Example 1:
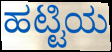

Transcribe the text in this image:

ಹಟ್ಟಿಯ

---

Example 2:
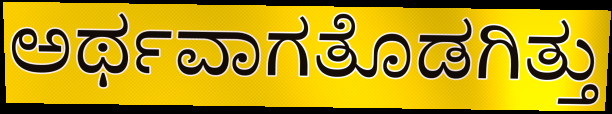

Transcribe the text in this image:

ಅರ್ಥವಾಗತೊಡಗಿತ್ತು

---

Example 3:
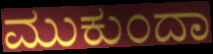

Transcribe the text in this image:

ಮುಕುಂದಾ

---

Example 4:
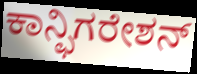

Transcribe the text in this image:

ಕಾನ್ಫಿಗರೇಶನ್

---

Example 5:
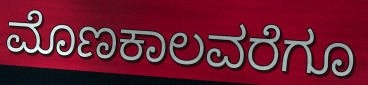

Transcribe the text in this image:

ಮೊಣಕಾಲವರೆಗೂ